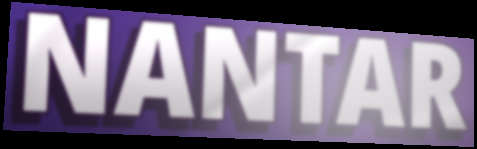
NANTAR